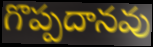
గొప్పదానవు